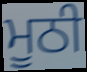
ਮੂਠੀ